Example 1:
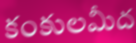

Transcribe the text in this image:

కంకులమీద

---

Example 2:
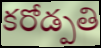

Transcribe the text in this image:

కరోడ్పతి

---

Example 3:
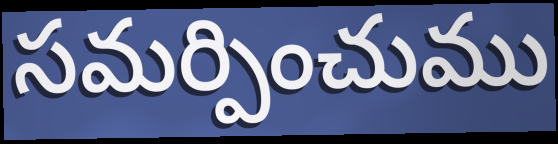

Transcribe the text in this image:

సమర్పించుము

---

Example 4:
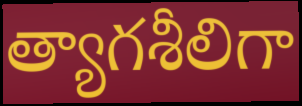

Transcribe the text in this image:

త్యాగశీలిగా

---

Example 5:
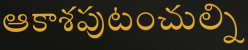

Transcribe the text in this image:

ఆకాశపుటంచుల్ని